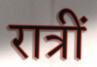
रात्रीं